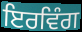
ਇਰਵਿੰਗ